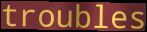
troubles